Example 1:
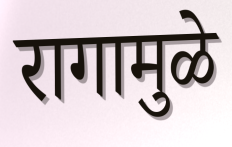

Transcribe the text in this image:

रागामुळे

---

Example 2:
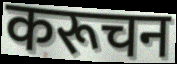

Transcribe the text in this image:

करूचन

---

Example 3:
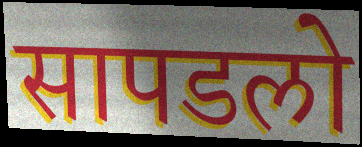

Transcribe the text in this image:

सापडलो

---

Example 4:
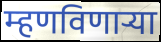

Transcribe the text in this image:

म्हणविणाऱ्या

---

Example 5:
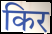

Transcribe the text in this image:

किर